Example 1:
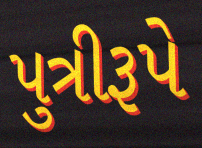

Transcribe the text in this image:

પુત્રીરૂપે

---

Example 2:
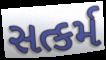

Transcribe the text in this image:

સત્કર્મ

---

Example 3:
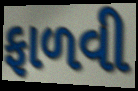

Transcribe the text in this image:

ફાળવી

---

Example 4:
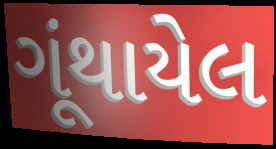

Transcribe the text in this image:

ગૂંથાયેલ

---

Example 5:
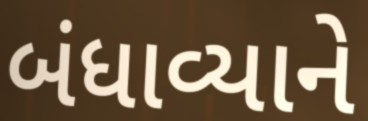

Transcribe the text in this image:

બંધાવ્યાને